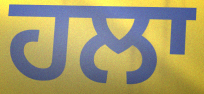
ਹਲਾ